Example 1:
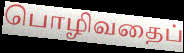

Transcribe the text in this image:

பொழிவதைப்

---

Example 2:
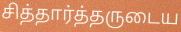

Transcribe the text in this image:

சித்தார்த்தருடைய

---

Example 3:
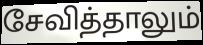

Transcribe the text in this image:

சேவித்தாலும்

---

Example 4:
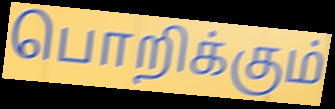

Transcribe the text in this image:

பொறிக்கும்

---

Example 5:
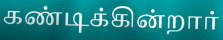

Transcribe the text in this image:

கண்டிக்கின்றார்